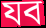
যব